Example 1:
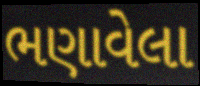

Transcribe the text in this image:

ભણાવેલા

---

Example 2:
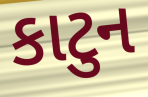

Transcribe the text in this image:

કાટુન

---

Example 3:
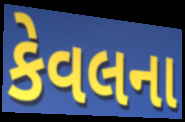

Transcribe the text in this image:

કેવલના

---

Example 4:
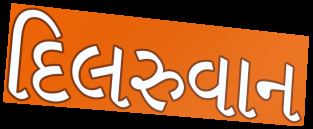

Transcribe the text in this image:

દિલરુવાન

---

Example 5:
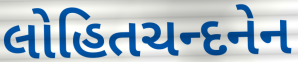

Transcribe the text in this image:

લોહિતચન્દનેન